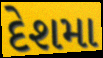
દેશમા